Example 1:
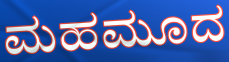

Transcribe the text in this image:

ಮಹಮೂದ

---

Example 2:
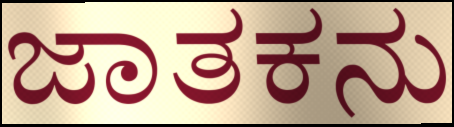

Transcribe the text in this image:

ಜಾತಕನು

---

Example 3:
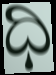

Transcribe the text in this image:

ಧಿ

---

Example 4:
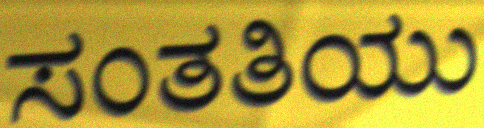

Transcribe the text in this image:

ಸಂತತಿಯು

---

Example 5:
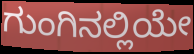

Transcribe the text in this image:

ಗುಂಗಿನಲ್ಲಿಯೇ